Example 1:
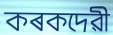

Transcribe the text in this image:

কৰকদেৱী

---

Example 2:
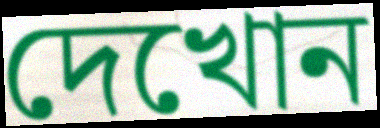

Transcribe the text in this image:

দেখোন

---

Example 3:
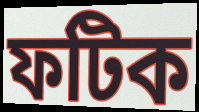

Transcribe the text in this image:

ফটিক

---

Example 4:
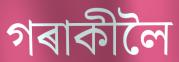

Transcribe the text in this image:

গৰাকীলৈ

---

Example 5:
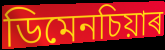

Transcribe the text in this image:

ডিমেনচিয়াৰ